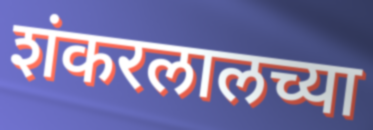
शंकरलालच्या